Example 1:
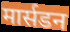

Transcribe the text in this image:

मार्सडन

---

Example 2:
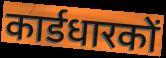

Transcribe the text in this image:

कार्डधारकों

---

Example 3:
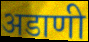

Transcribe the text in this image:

अडाणी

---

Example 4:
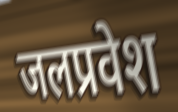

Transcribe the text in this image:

जलप्रवेश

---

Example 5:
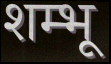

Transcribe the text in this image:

शम्भू